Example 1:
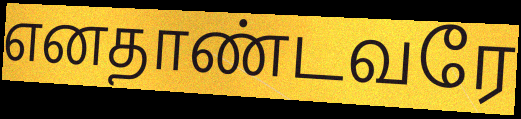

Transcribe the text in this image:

எனதாண்டவரே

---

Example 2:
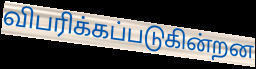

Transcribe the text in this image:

விபரிக்கப்படுகின்றன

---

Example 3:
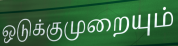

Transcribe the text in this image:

ஒடுக்குமுறையும்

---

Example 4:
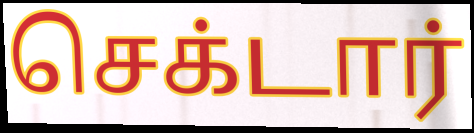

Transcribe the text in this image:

செக்டார்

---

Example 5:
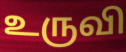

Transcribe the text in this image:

உருவி